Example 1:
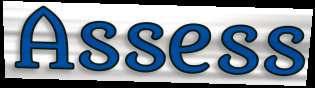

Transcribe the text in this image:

Assess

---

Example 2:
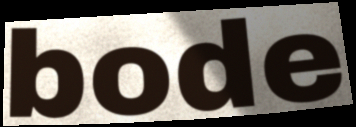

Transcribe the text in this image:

bode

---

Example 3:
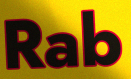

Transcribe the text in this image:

Rab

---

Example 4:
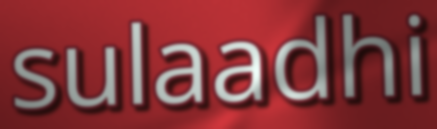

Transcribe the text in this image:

sulaadhi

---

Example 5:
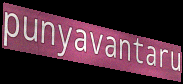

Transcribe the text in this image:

punyavantaru